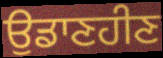
ਉਡਾਣਹੀਣ